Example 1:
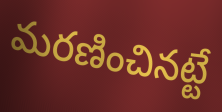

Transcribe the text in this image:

మరణించినట్టే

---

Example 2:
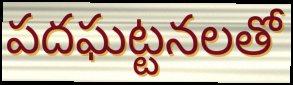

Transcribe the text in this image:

పదఘట్టనలతో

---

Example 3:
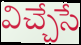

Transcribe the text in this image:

విచ్చేసే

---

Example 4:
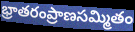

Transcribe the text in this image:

భ్రాతరంప్రాణసమ్మితం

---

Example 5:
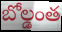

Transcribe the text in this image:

బోల్డంత